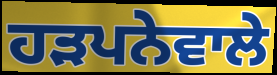
ਹੜਪਨੇਵਾਲੇ